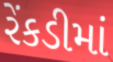
રેંકડીમાં